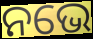
ନଭେ